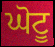
ਘੋਟੂ